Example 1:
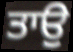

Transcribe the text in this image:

ਤਾਉ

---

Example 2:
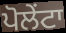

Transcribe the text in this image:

ਪੋਲੇਂਟਾ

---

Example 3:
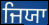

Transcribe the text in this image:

ਜਿਯਾ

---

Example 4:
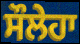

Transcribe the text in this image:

ਸੌਲੇਹਾ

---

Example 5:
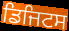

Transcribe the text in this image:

ਡਿਜਿਟਸ